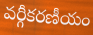
వర్గీకరణీయం